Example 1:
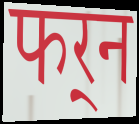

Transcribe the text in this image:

फर्न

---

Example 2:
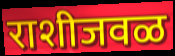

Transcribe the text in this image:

राशीजवळ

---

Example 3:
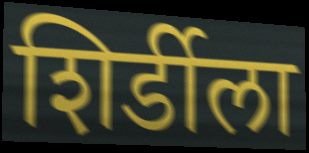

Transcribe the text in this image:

शिर्डीला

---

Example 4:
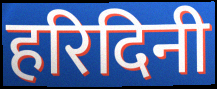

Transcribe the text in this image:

हरिदिनी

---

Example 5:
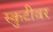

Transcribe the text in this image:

स्कुटीवर